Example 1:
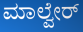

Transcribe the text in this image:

ಮಾಲ್ವೇರ್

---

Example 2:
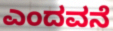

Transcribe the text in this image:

ಎಂದವನೆ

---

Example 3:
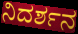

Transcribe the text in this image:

ನಿದರ್ಶನ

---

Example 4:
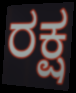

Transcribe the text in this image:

ರಕ್ಷ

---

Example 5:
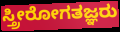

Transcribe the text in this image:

ಸ್ತ್ರೀರೋಗತಜ್ಞರು